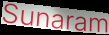
Sunaram